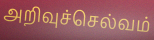
அறிவுச்செல்வம்